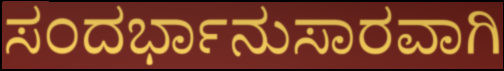
ಸಂದರ್ಭಾನುಸಾರವಾಗಿ